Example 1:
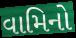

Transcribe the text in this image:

વામિનો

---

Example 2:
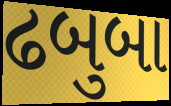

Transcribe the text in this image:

ઢબુબા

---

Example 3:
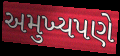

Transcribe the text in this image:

અમુખ્યપણે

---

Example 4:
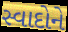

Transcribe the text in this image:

સ્વાદોને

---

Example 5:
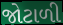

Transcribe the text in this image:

જોટાળી